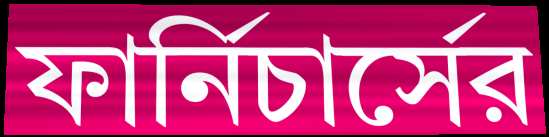
ফার্নিচার্সের